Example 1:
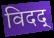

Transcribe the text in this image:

विदद्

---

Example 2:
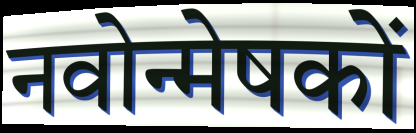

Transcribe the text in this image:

नवोन्‍मेषकों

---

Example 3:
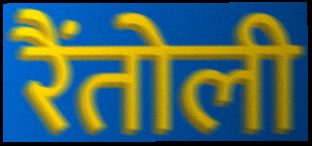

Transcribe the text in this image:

रैंतोली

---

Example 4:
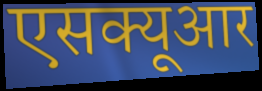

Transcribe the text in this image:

एसक्यूआर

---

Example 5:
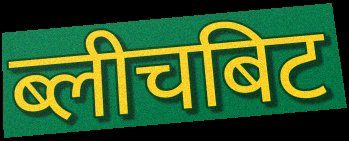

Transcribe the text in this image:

ब्लीचबिट